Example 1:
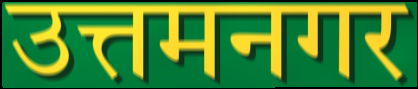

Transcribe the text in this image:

उत्तमनगर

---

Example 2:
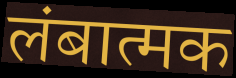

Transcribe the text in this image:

लंबात्मक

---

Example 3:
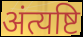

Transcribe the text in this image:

अंत्यष्टि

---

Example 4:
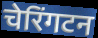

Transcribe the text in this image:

चेरिंगटन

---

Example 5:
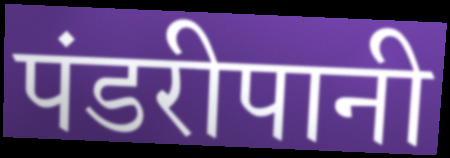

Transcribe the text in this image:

पंडरीपानी